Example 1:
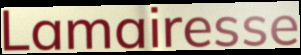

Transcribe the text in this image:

Lamairesse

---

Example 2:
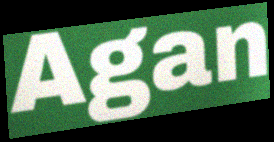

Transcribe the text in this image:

Agan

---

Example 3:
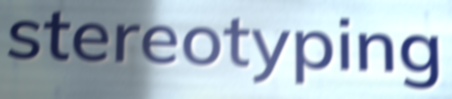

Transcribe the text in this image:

stereotyping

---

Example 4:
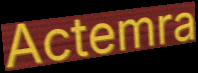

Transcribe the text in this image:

Actemra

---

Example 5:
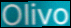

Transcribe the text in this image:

Olivo